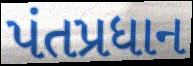
પંતપ્રધાન